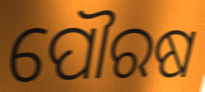
ପୌରଷ